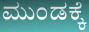
ಮುಂಡಕ್ಕೆ